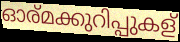
ഓര്മക്കുറിപ്പുകള്